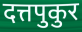
दत्तपुकुर